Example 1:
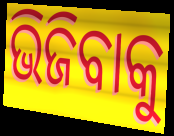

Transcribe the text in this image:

ଭିଜିବାକୁ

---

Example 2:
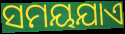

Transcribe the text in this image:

ସମୟଯାଏ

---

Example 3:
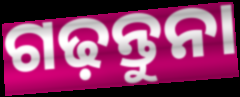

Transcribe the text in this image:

ଗଢ଼ନ୍ତୁନା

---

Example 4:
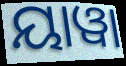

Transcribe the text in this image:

ୟାୱା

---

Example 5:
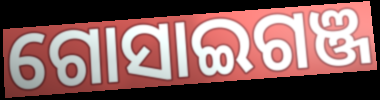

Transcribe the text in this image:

ଗୋସାଇଗଞ୍ଜ